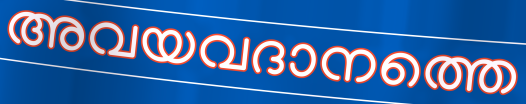
അവയവദാനത്തെ